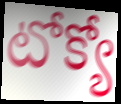
టోక్యో